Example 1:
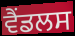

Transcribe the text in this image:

ਵੈਂਡਲਸ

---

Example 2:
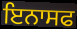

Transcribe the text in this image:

ਇਨਾਸਫ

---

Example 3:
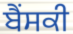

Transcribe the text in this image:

ਬੈਂਸਕੀ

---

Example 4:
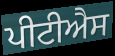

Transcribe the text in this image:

ਪੀਟੀਐਸ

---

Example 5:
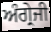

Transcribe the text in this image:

ਅੰਗ੍ਰੇਜੀ